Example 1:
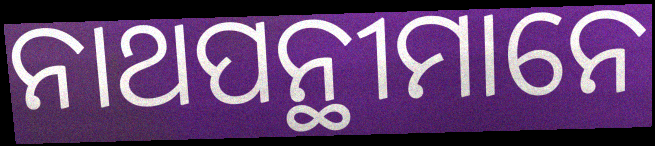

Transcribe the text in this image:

ନାଥପନ୍ଥୀମାନେ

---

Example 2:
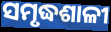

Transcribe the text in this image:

ସମୃଦ୍ଧଶାଳୀ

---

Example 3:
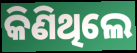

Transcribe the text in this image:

କିଣିଥିଲେ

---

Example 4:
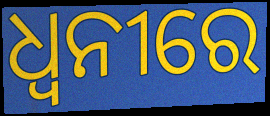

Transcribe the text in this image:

ଧ୍ଵନୀରେ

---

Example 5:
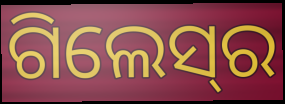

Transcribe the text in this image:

ଗିଲେସ୍‍ର